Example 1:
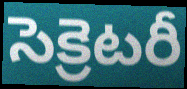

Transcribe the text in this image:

సెక్రెటరీ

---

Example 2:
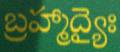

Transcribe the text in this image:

బ్రహ్మాద్యైః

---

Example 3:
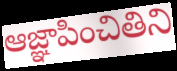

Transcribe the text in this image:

ఆజ్ఞాపించితిని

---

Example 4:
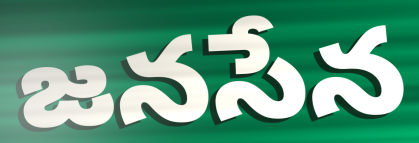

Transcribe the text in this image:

జనసేన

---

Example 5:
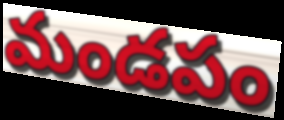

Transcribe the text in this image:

మండపం